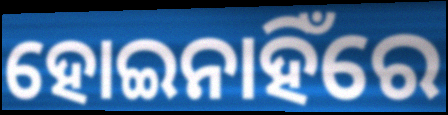
ହୋଇନାହିଁରେ